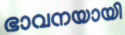
ഭാവനയായി